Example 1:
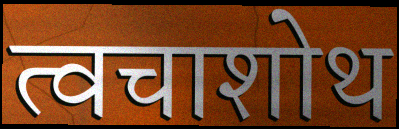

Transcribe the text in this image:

त्वचाशोथ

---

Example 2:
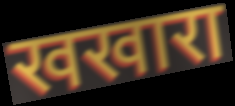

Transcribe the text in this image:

खखारा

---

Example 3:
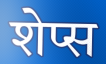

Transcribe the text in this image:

शेप्स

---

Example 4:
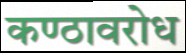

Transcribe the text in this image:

कण्ठावरोध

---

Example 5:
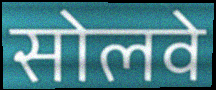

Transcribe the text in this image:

सोलवे